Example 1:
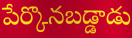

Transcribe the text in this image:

పేర్కొనబడ్డాడు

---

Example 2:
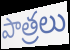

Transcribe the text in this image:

పాత్రలు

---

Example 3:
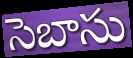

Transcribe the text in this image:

సెబాసు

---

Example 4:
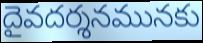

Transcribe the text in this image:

దైవదర్శనమునకు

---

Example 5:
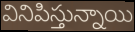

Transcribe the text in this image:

వినిపిస్తున్నాయి